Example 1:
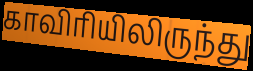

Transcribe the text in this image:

காவிரியிலிருந்து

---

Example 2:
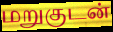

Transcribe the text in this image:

மறுகுடன்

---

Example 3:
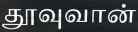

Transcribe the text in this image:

தூவுவான்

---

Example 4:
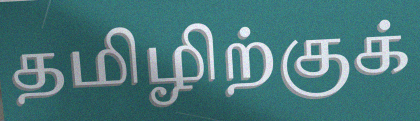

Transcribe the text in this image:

தமிழிற்குக்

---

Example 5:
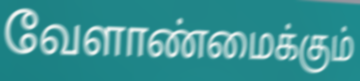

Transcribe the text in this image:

வேளாண்மைக்கும்